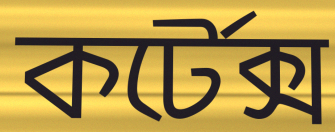
কর্টেক্স